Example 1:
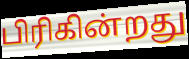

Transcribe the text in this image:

பிரிகின்றது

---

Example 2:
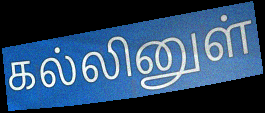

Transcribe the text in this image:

கல்லினுள்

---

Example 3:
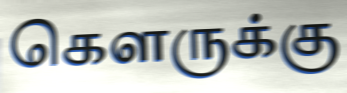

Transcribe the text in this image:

கௌருக்கு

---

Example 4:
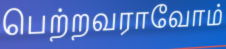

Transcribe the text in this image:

பெற்றவராவோம்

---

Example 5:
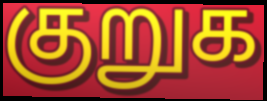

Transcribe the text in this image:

குறுக